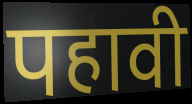
पहावी